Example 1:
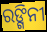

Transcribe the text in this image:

ରଙ୍ଗିନୀ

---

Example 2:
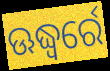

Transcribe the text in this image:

ଊଦ୍ଧ୍ୱର୍ରେ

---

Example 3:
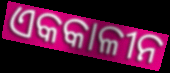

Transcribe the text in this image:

ଏକକାଳୀନ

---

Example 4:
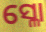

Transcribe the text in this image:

ସ୍ଳୋ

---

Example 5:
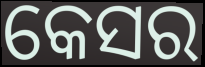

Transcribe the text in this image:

କେସର